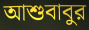
আশুবাবুর